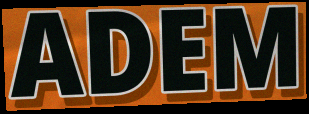
ADEM